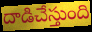
దాడిచేస్తుంది